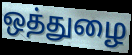
ஒத்துழை